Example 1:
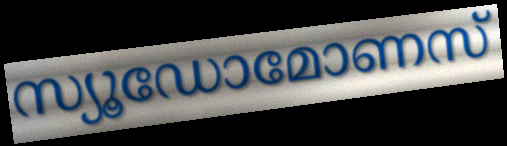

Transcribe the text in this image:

സ്യൂഡോമോണസ്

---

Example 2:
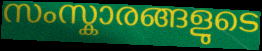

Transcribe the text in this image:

സംസ്കാരങ്ങളുടെ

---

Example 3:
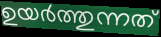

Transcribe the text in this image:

ഉയർത്തുന്നത്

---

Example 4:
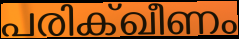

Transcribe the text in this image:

പരിക്ഖീണം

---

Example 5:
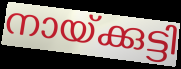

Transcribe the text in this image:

നായ്‌ക്കുട്ടി